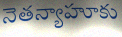
నెతన్యాహూకు